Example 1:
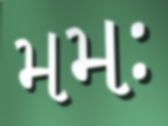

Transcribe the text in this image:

મમઃ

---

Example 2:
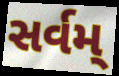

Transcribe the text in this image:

સર્વમ્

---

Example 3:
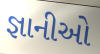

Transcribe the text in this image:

જ્ઞાનીઓ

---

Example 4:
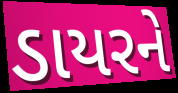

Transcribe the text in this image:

ડાયરને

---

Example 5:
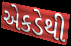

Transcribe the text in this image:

એકડેથી